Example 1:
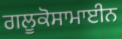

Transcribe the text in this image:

ਗਲੂਕੋਸਾਮਾਈਨ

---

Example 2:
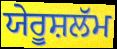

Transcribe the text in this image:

ਯੇਰੂਸ਼ਲੱਮ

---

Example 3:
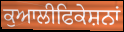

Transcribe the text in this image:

ਕੁਆਲੀਫਿਕੇਸ਼ਨਾਂ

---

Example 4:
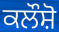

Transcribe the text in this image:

ਕਲੌਸ਼ੋ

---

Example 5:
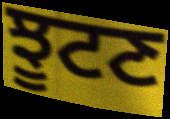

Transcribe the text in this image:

ਝੂਟਣ